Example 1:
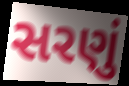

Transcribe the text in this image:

સરણું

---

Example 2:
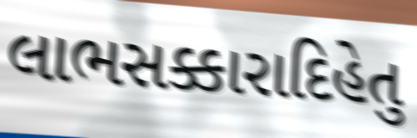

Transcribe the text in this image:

લાભસક્કારાદિહેતુ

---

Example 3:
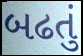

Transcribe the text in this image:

બઢતું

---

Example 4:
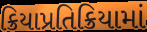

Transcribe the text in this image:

ક્રિયાપ્રતિક્રિયામાં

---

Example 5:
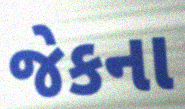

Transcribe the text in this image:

જેકના